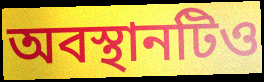
অবস্থানটিও